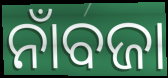
ନାଁବଜା